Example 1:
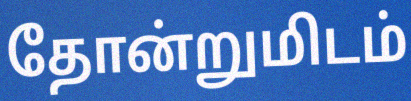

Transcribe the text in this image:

தோன்றுமிடம்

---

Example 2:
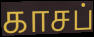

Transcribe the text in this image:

காசப்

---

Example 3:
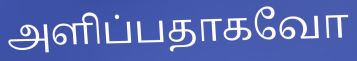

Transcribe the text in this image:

அளிப்பதாகவோ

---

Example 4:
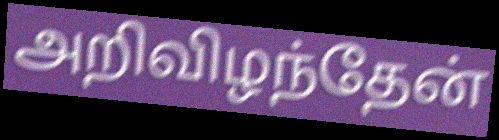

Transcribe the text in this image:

அறிவிழந்தேன்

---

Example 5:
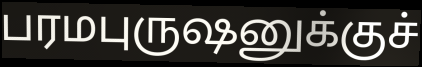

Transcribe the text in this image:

பரமபுருஷனுக்குச்